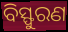
ବିସ୍ଫୁରଣ